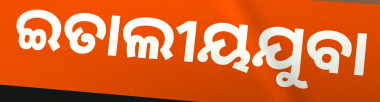
ଇତାଲୀୟଯୁବା